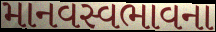
માનવસ્વભાવના